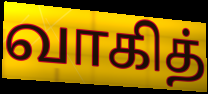
வாகித்